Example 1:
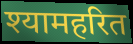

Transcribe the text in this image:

श्यामहरित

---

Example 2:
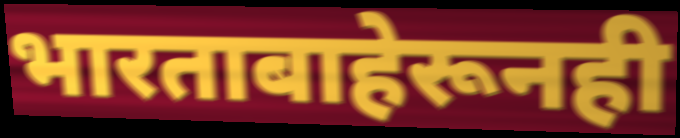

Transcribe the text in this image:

भारताबाहेरूनही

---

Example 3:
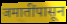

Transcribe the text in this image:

जमातींपासून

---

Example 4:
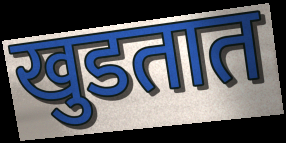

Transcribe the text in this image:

खुडतात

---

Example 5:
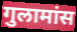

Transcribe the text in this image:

गुलामांस